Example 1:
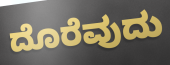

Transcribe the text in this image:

ದೊರೆವುದು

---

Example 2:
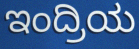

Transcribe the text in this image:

ಇಂದ್ರಿಯ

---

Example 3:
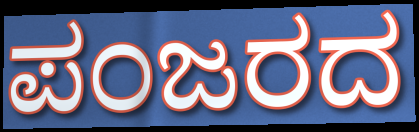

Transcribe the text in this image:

ಪಂಜರದ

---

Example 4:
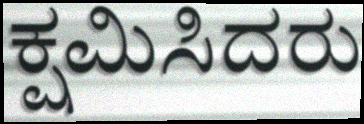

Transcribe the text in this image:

ಕ್ಷಮಿಸಿದರು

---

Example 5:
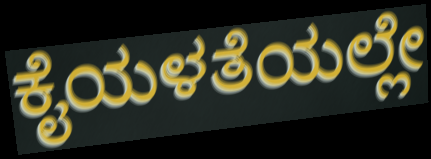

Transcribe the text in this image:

ಕೈಯಳತೆಯಲ್ಲೇ